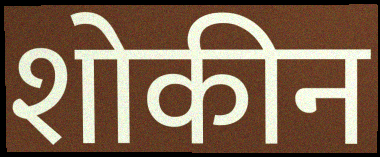
शोकीन